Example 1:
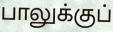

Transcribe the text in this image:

பாலுக்குப்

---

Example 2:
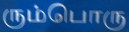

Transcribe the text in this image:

ரும்பொரு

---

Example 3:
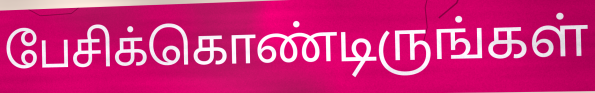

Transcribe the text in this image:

பேசிக்கொண்டிருங்கள்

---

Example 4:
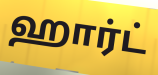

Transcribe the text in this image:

ஹார்ட்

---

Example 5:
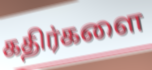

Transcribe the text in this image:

கதிர்களை